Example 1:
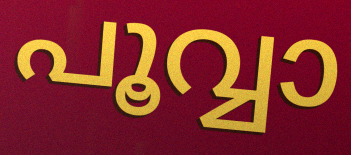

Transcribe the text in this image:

പൂവ്വാ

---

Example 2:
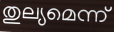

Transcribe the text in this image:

തുല്യമെന്ന്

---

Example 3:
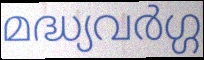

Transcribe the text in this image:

മദ്ധ്യവർഗ്ഗ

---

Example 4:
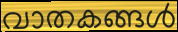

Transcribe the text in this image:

വാതകങ്ങൾ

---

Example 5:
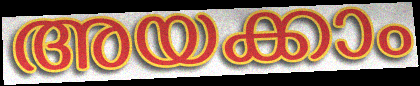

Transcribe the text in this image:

അയക്കാം